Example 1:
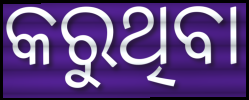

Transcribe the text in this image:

କରୁଥିବା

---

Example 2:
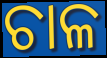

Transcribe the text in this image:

ଚାଳ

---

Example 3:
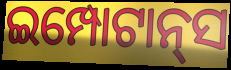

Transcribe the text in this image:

ଇମ୍ପୋଟାନ୍‌ସ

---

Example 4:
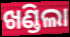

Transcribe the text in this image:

ଖଣ୍ଡିଲା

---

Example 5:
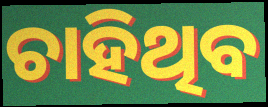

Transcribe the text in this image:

ଚାହିଥିବ